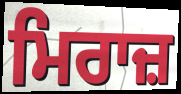
ਮਿਰਾਜ਼